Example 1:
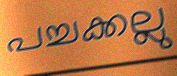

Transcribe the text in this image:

പച്ചക്കല്ലു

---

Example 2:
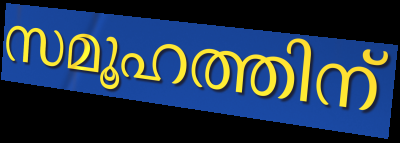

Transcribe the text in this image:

സമൂഹത്തിന്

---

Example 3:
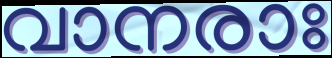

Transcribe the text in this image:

വാനരാഃ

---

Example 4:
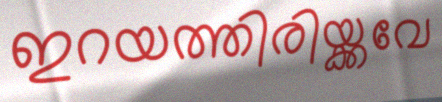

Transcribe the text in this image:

ഇറയത്തിരിയ്ക്കവേ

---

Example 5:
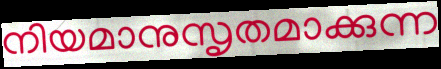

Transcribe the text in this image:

നിയമാനുസൃതമാക്കുന്ന